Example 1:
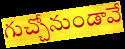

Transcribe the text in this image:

గుచ్చోనుండావే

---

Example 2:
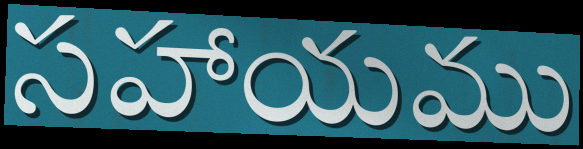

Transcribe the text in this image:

సహాయము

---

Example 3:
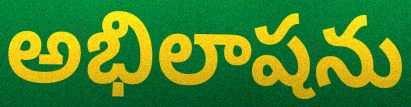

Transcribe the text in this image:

అభిలాషను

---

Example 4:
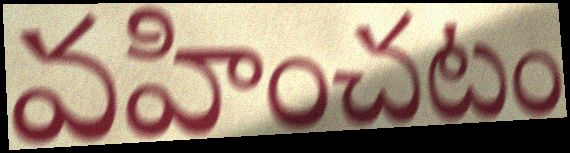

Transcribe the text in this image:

వహించటం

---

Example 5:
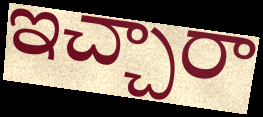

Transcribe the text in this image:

ఇచ్చారా